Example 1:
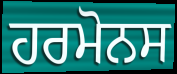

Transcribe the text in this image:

ਹਰਮੋਨਸ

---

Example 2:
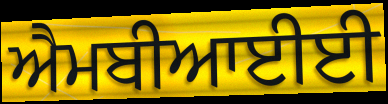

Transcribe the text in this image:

ਐਮਬੀਆਈਈ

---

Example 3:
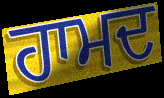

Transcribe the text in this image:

ਹਾਮਦ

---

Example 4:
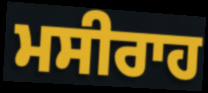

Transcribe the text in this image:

ਮਸੀਰਾਹ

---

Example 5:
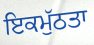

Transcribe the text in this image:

ਇਕਮੁੱਠਤਾ